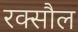
रक्सौल